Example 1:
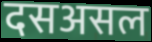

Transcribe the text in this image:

दसअसल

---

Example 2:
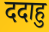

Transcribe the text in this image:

ददाहु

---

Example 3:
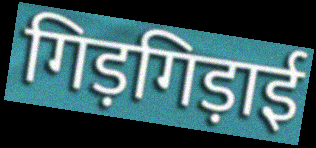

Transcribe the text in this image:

गिड़गिड़ाई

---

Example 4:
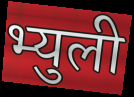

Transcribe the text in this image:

भ्युली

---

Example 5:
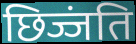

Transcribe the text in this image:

छिज्जंति